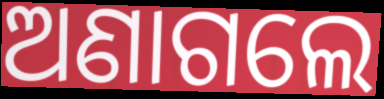
ଅଣାଗଲେ